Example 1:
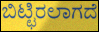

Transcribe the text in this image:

ಬಿಟ್ಟಿರಲಾಗದೆ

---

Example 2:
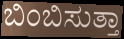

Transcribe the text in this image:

ಬಿಂಬಿಸುತ್ತಾ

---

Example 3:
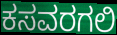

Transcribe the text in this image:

ಕಸವರಗಲಿ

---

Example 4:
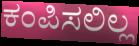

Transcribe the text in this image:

ಕಂಪಿಸಲಿಲ್ಲ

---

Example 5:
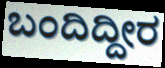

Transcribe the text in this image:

ಬಂದಿದ್ದೀರ